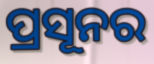
ପ୍ରସୂନର